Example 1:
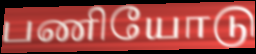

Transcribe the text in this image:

பணியோடு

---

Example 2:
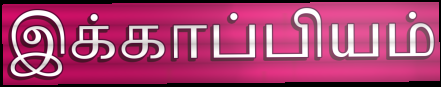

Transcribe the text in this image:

இக்காப்பியம்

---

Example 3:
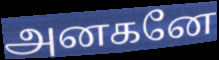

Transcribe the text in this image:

அனகனே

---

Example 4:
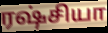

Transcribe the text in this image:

ரஷ்சியா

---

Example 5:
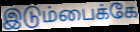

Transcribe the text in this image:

இடும்பைக்கே